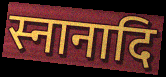
स्नानादि